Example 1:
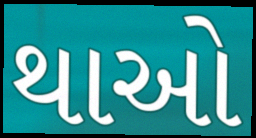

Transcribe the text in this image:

થાઓ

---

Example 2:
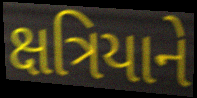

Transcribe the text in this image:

ક્ષત્રિયાને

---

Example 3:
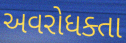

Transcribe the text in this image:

અવરોધક્તા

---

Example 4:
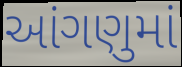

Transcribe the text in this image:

આંગણુમાં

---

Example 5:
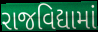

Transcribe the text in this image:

રાજવિદ્યામાં